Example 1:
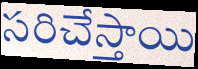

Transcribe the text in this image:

సరిచేస్తాయి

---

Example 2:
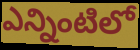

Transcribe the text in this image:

ఎన్నింటిలో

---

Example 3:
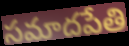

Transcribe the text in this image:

సమాదపేతి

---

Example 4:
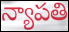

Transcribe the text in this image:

న్యాపతి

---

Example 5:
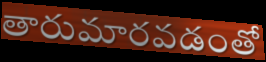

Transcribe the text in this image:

తారుమారవడంతో